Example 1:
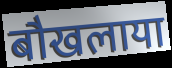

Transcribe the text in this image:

बौखलाया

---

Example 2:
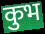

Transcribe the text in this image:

कुभ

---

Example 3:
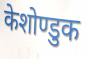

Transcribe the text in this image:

केशोण्डुक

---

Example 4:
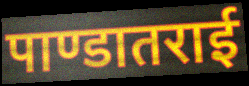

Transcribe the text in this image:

पाण्डातराई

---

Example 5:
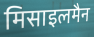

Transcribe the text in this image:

मिसाइलमैन